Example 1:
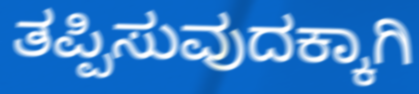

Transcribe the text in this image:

ತಪ್ಪಿಸುವುದಕ್ಕಾಗಿ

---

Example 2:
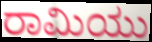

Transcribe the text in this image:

ರಾಮಿಯು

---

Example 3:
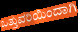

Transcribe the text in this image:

ಒತ್ತುವರಿಯಿಂದಾಗಿ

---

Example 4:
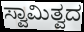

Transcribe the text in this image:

ಸ್ವಾಮಿತ್ವದ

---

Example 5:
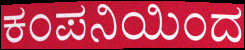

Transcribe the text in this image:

ಕಂಪನಿಯಿಂದ